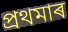
প্ৰথমাৰ